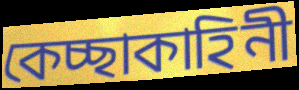
কেচ্ছাকাহিনী